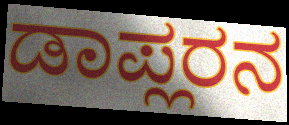
ಡಾಪ್ಲರನ